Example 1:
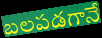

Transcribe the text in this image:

బలపడగానే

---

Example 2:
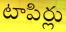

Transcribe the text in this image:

టాపిర్లు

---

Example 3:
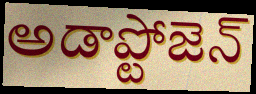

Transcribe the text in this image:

అడాప్టోజెన్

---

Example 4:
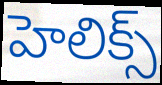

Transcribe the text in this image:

హెలిక్స్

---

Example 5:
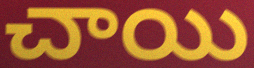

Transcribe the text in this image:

చాయి